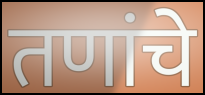
तणांचे